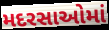
મદરસાઓમાં